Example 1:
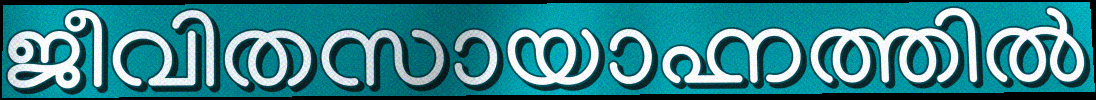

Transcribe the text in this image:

ജീവിതസായാഹ്നത്തിൽ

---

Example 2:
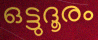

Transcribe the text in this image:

ഒട്ടുദൂരം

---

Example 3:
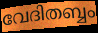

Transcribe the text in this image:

വേദിതബ്ബം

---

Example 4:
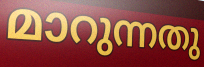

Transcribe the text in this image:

മാറുന്നതു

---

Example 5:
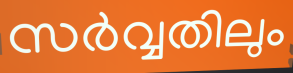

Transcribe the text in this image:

സർവ്വതിലും